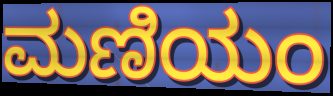
ಮಣಿಯಂ